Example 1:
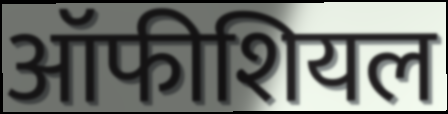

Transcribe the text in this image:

ऑफीशियल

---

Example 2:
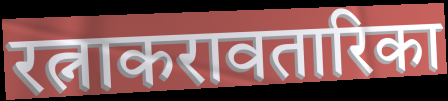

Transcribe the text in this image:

रत्नाकरावतारिका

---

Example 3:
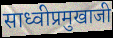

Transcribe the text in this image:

साध्वीप्रमुखाजी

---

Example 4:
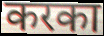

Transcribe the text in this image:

करका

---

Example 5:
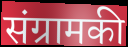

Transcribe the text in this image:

संग्रामकी